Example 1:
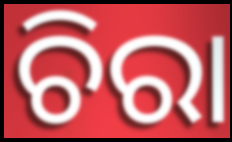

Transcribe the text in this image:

ଚିରା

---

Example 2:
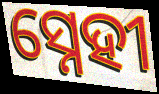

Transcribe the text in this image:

ସ୍ନେହୀ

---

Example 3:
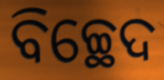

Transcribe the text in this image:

ବିଚ୍ଛେଦ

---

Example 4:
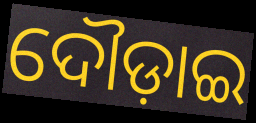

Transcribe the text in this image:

ଦୌଡ଼ାଇ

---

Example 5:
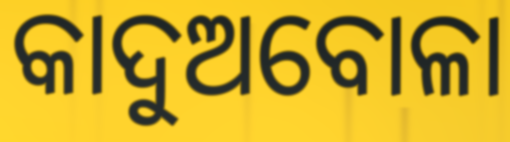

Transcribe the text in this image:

କାଦୁଅବୋଳା